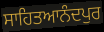
ਸਾਹਿਤਆਨੰਦਪੁਰ